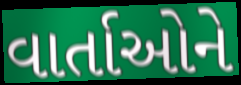
વાર્તાઓને